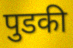
पुडकी